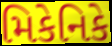
મિકેનિકે